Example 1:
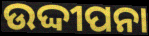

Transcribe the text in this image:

ଉଦ୍ଦୀପନା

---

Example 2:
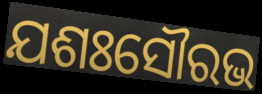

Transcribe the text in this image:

ଯଶଃସୌରଭ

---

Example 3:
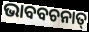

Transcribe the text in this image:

ଭାବବଚନାତ୍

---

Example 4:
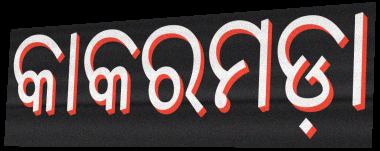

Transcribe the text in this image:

କାକରମଡ଼ା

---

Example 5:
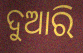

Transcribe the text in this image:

ଦୁଆରି